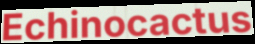
Echinocactus